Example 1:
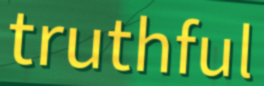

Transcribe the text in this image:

truthful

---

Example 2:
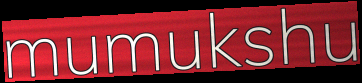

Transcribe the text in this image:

mumukshu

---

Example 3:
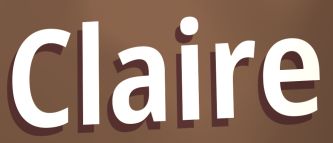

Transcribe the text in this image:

Claire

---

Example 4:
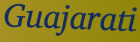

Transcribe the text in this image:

Guajarati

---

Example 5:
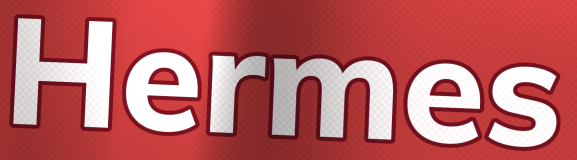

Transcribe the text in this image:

Hermes